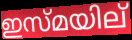
ഇസ്മയില്